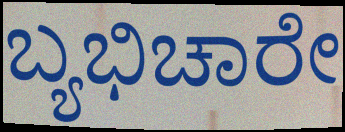
ಬ್ಯಭಿಚಾರೇ